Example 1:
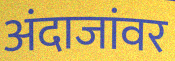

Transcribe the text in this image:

अंदाजांवर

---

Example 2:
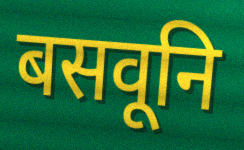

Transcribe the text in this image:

बसवूनि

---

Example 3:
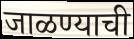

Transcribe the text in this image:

जाळण्याची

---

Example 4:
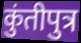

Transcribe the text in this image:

कुंतीपुत्र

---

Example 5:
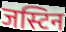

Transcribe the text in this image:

जस्टिन